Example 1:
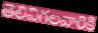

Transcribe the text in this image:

తెలివిగలవారికి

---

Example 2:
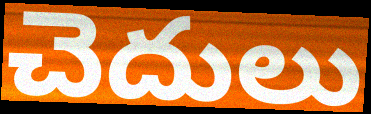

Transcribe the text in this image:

చెదులు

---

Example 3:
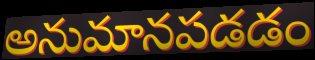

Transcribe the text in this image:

అనుమానపడడం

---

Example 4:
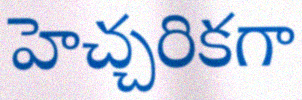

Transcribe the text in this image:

హెచ్చరికగా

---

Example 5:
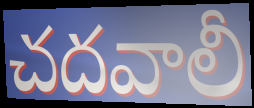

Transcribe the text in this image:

చదవాలీ